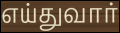
எய்துவார்